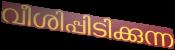
വീശിപ്പിടിക്കുന്ന